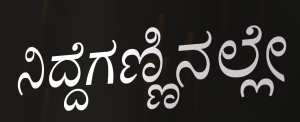
ನಿದ್ದೆಗಣ್ಣಿನಲ್ಲೇ